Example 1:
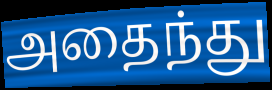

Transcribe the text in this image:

அதைந்து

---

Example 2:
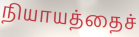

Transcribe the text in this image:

நியாயத்தைச்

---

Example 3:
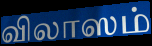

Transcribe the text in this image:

விலாஸம்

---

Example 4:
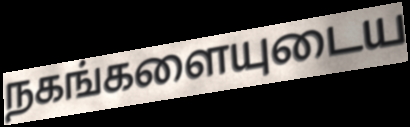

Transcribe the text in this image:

நகங்களையுடைய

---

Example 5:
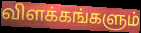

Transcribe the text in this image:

விளக்கங்களும்